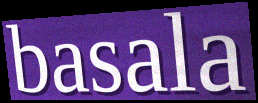
basala